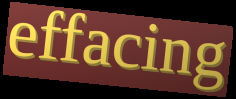
effacing